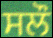
ਸਲੌ